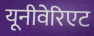
यूनीवेरिएट